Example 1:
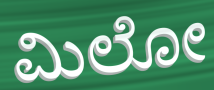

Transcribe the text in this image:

ಮಿಲೋ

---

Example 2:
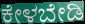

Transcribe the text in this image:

ಕೇಳಬೇಡಿ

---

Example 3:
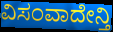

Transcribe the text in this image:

ವಿಸಂವಾದೇನ್ತಿ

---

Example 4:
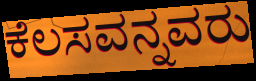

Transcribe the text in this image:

ಕೆಲಸವನ್ನವರು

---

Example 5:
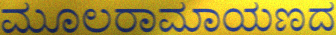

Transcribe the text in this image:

ಮೂಲರಾಮಾಯಣದ